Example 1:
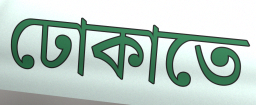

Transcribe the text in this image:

ঢোকাতে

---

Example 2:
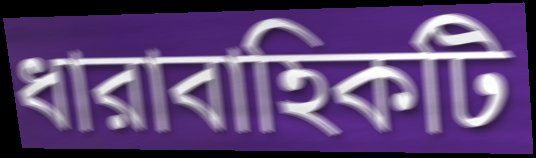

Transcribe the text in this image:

ধারাবাহিকটি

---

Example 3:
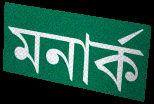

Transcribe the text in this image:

মনার্ক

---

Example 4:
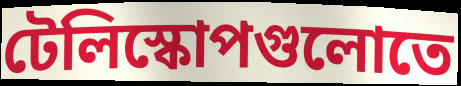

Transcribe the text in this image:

টেলিস্কোপগুলোতে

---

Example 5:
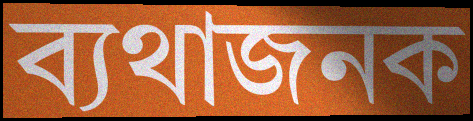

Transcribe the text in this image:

ব্যথাজনক